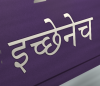
इच्छेनेच